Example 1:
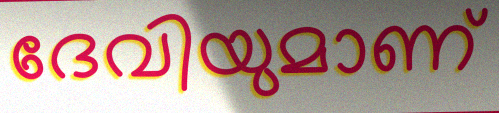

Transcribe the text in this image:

ദേവിയുമാണ്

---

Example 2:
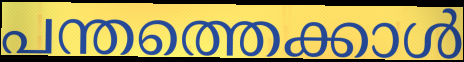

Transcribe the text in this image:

പന്തത്തെക്കാൾ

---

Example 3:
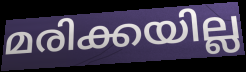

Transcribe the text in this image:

മരിക്കയില്ല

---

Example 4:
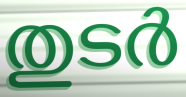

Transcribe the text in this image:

തുടർ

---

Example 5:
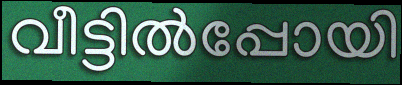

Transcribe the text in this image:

വീട്ടിൽപ്പോയി